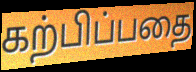
கற்பிப்பதை